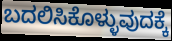
ಬದಲಿಸಿಕೊಳ್ಳುವುದಕ್ಕೆ